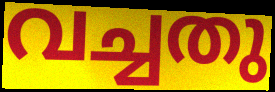
വച്ചതു